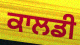
ਕਾਲਡੀ